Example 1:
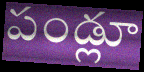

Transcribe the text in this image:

పండ్లూ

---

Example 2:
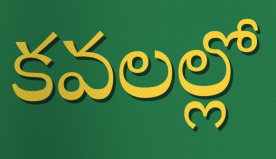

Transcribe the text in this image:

కవలల్లో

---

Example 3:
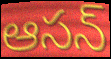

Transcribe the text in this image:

ఆసన్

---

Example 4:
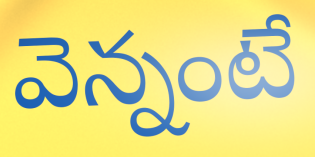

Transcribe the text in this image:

వెన్నంటే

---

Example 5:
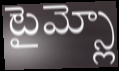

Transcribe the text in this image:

టైమ్స్లో